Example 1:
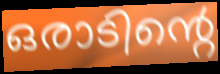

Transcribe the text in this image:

ഒരാടിന്റെ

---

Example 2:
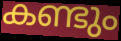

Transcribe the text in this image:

കണ്ടും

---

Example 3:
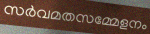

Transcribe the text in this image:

സർവമതസമ്മേളനം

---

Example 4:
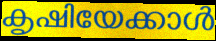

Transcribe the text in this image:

കൃഷിയേക്കാൾ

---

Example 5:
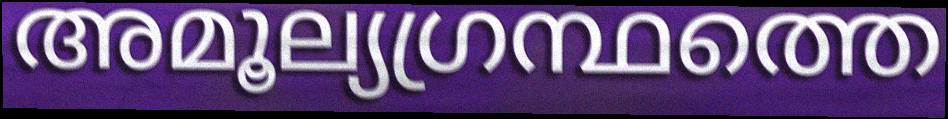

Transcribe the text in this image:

അമൂല്യഗ്രന്ഥത്തെ